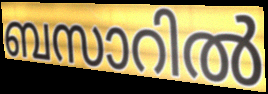
ബസാറിൽ